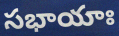
సభాయాః